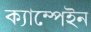
ক্যাম্পেইন